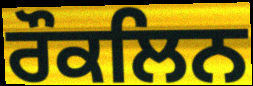
ਰੌਕਲਿਨ